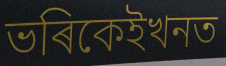
ভৰিকেইখনত